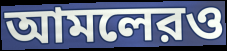
আমলেরও